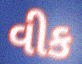
વીક